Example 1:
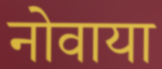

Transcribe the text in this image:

नोवाया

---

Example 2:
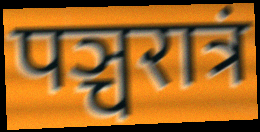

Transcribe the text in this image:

पञ्चरात्रं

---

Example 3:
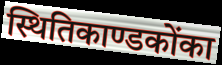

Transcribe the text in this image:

स्थितिकाण्डकोंका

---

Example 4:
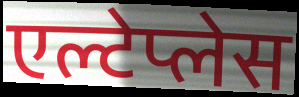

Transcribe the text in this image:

एल्टेप्लेस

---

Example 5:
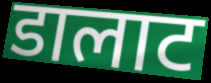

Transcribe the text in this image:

डालाट